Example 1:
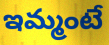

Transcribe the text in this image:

ఇమ్మంటే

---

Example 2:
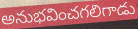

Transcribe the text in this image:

అనుభవించగలిగాడు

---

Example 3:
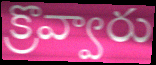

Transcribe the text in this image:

క్రొవ్వారు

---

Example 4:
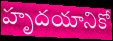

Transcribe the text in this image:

హృదయానికో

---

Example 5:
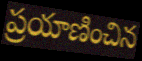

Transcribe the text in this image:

ప్రయాణించిన